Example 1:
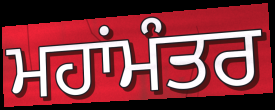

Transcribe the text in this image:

ਮਹਾਂਮੰਤਰ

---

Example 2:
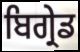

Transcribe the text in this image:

ਬਿਗ੍ਰੇਡ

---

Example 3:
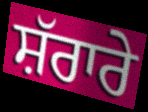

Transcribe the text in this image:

ਸ਼ੱਰਾਰੇ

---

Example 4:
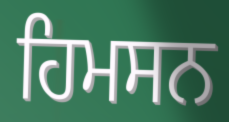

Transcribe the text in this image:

ਹਿਮਸਨ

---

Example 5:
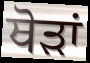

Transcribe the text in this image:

ਥੋੜਾਂ